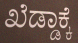
ಖೆಡ್ಡಾಕ್ಕೆ